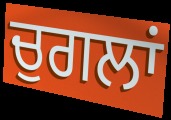
ਚੁਗਲਾਂ